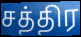
சத்திர